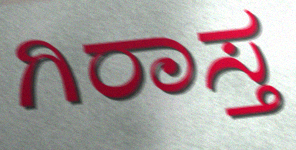
ಗಿರಾಸ್ತ